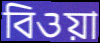
বিওয়া